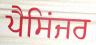
ਪੈਸਿਂਜਰ